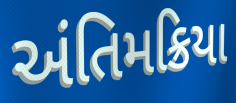
અંતિમક્રિયા